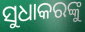
ସୁଧାକରଙ୍କୁ